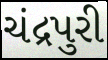
ચંદ્રપુરી